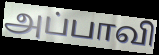
அப்பாவி